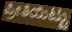
ಪ್ರೀತಿಯಿಟ್ಟು